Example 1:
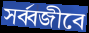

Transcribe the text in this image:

সর্ব্বজীবে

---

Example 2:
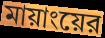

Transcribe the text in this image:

মায়াংয়ের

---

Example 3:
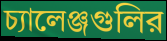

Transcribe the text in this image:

চ্যালেঞ্জগুলির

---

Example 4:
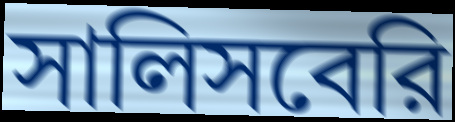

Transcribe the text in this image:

সালিসবেরি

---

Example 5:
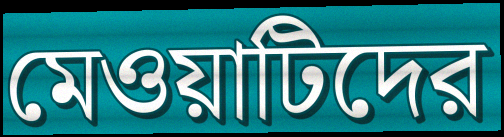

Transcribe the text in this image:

মেওয়াটিদের